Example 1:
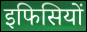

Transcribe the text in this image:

इफिसियों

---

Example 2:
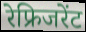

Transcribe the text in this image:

रेफ्रिजरेंट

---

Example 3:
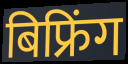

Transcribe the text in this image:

बिफ्रिंग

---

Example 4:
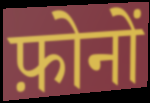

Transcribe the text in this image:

फ़ोनों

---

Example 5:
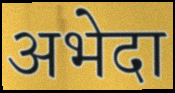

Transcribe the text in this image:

अभेदा